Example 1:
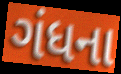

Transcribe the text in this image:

ગંધના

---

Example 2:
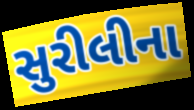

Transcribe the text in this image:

સુરીલીના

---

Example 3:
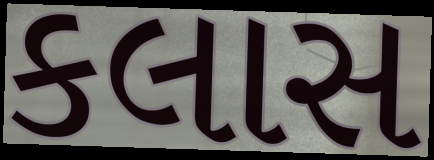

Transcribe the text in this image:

કલાસ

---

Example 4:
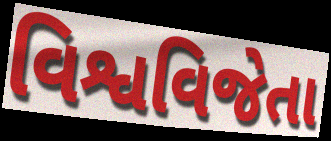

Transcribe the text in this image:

વિશ્વવિજેતા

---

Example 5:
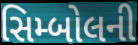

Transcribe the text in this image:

સિમ્બોલની